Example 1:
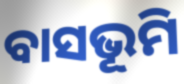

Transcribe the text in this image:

ବାସଭୂମି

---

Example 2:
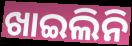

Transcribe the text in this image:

ଖାଇଲିନି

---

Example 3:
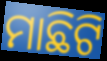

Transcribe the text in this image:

ମାଛିଟି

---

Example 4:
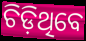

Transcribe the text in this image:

ଚିଡ଼ିଥିବେ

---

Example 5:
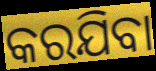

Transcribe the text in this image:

କରଯିବା